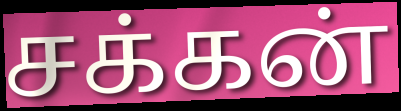
சக்கன்